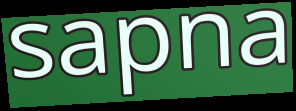
sapna